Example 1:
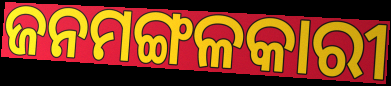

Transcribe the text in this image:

ଜନମଙ୍ଗଳକାରୀ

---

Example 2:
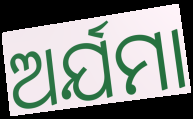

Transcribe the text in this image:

ଅର୍ଯମା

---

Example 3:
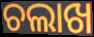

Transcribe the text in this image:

ଚଲାଖ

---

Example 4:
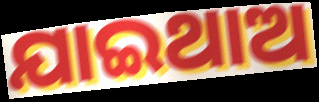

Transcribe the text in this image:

ଯାଇଥାଅ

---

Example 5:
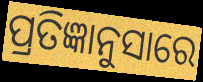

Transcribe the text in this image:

ପ୍ରତିଜ୍ଞାନୁସାରେ